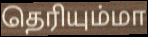
தெரியும்மா